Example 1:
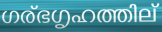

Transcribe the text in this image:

ഗര്ഭഗൃഹത്തില്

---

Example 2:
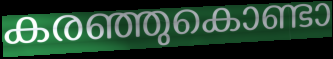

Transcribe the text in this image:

കരഞ്ഞുകൊണ്ടാ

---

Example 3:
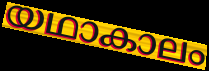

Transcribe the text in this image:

യഥാകാലം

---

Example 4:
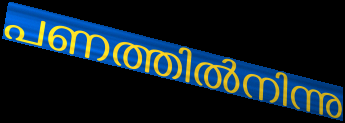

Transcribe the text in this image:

പണത്തിൽനിന്നു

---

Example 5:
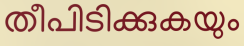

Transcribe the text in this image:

തീപിടിക്കുകയും